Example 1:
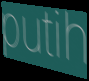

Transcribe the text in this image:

putih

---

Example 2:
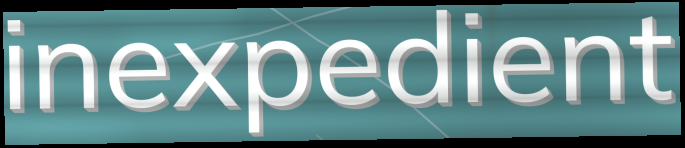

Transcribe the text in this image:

inexpedient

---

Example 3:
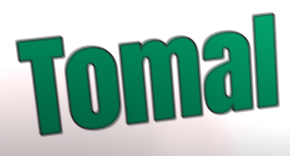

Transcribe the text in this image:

Tomal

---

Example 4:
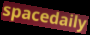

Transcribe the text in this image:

spacedaily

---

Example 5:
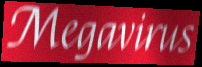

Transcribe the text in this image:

Megavirus